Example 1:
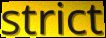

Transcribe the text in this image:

strict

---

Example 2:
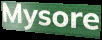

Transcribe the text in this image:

Mysore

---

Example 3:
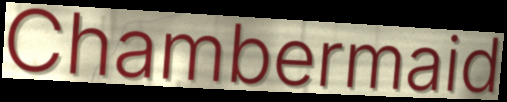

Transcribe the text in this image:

Chambermaid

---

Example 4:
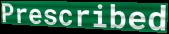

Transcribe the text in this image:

Prescribed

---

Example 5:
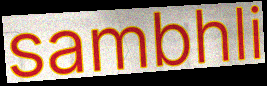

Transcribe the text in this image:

sambhli